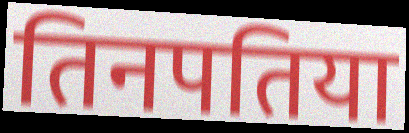
तिनपतिया